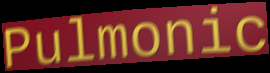
Pulmonic